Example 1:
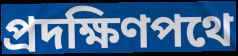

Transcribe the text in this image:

প্রদক্ষিণপথে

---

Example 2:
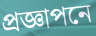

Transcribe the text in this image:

প্রজ্ঞাপনে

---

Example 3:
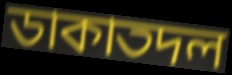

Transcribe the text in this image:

ডাকাতদল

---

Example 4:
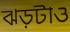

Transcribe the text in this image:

ঝড়টাও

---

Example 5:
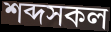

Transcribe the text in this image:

শব্দসকল